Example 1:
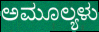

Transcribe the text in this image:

ಅಮೂಲ್ಯಳು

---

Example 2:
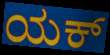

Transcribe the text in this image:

ಯಕ್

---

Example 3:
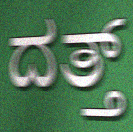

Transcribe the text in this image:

ದತ್ತ್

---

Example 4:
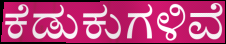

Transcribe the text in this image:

ಕೆಡುಕುಗಳಿವೆ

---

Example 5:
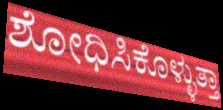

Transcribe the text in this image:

ಶೋಧಿಸಿಕೊಳ್ಳುತ್ತಾ